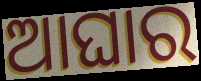
ଆଘାର